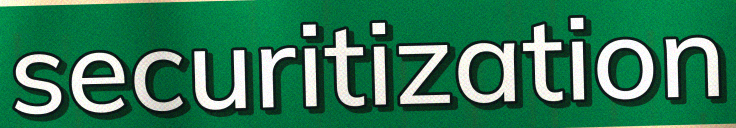
securitization